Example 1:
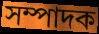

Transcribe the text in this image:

সম্পাদক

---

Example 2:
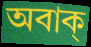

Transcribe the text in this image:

অবাক্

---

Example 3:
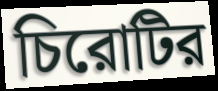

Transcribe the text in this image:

চিরোটির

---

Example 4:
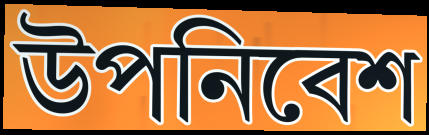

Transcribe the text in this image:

উপনিবেশ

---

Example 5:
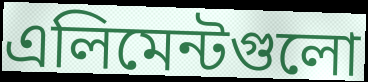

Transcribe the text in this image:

এলিমেন্টগুলো